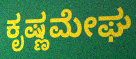
ಕೃಷ್ಣಮೇಘ